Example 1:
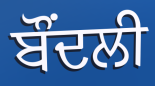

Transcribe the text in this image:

ਬੌਂਦਲੀ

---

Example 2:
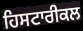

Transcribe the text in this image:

ਹਿਸਟਾਰੀਕਲ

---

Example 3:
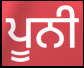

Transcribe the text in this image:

ਪੂਨੀ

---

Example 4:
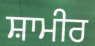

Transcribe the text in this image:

ਸ਼ਾਮੀਰ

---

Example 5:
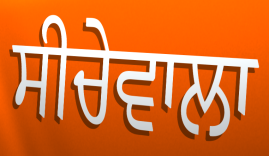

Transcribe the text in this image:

ਸੀਚੇਵਾਲਾ